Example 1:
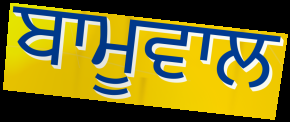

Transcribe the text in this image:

ਬਾਮੂਵਾਲ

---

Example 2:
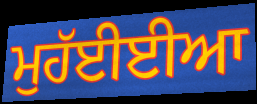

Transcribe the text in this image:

ਮੁਹੱਈਈਆ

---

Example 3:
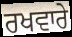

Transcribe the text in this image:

ਰਖਵਾਰੇ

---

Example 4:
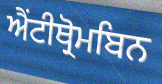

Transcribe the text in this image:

ਐਂਟੀਥ੍ਰੋਮਬਿਨ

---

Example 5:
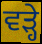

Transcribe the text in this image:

ਵੜ੍ਹੇ